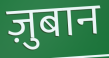
ज़ुबान